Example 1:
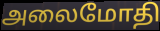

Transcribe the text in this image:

அலைமோதி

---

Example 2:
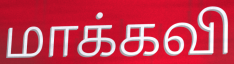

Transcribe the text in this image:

மாக்கவி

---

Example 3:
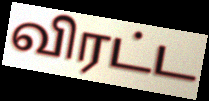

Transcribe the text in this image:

விரட்ட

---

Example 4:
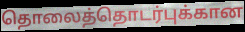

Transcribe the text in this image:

தொலைத்தொடர்புக்கான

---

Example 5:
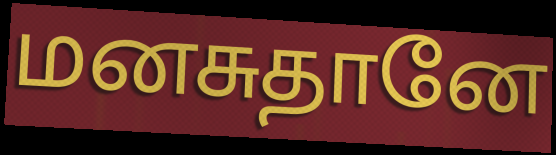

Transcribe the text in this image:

மனசுதானே